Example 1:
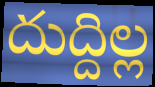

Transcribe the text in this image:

దుద్దిల్ల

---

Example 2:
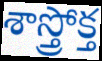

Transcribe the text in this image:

శాస్త్రోక్త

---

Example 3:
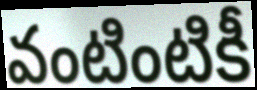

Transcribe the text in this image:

వంటింటికీ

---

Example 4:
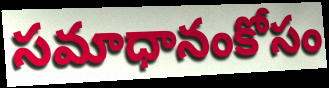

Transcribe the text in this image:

సమాధానంకోసం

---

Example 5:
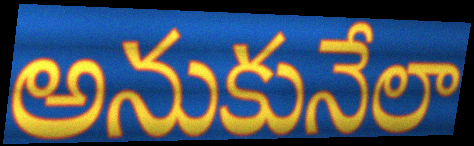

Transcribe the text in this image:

అనుకునేలా